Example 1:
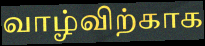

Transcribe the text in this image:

வாழ்விற்காக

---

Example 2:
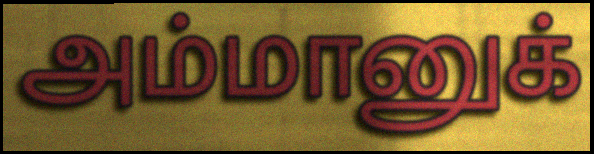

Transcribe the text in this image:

அம்மானுக்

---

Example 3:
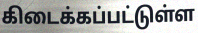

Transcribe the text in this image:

கிடைக்கப்பட்டுள்ள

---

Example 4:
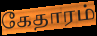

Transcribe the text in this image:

கேதாரம்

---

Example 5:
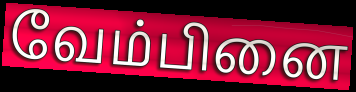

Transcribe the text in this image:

வேம்பினை